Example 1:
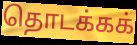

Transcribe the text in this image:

தொடக்கக்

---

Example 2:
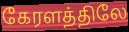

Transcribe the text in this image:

கேரளத்திலே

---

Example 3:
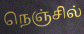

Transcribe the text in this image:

நெஞ்சில்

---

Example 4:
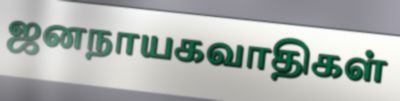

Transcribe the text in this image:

ஜனநாயகவாதிகள்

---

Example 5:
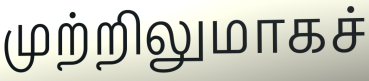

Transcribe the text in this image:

முற்றிலுமாகச்